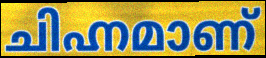
ചിഹ്നമാണ്